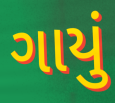
ગાયું